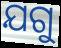
ଯଗୁ